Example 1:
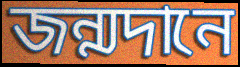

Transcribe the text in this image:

জন্মদানে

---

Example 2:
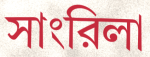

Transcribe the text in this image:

সাংরিলা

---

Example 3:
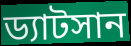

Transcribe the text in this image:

ড্যাটসান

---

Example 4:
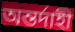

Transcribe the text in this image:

অন্তর্দাহী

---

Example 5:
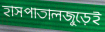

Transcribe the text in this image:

হাসপাতালজুড়েই